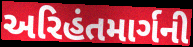
અરિહંતમાર્ગની